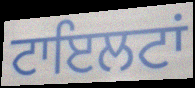
ਟਾਇਲਟਾਂ